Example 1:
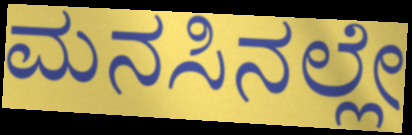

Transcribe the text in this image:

ಮನಸಿನಲ್ಲೇ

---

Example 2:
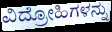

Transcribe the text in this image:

ವಿದ್ರೋಹಿಗಳನ್ನು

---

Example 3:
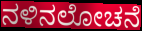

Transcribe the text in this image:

ನಳಿನಲೋಚನೆ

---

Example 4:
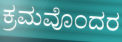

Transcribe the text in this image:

ಕ್ರಮವೊಂದರ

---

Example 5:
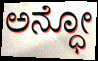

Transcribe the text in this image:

ಅನ್ಧೋ